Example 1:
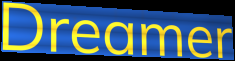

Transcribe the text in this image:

Dreamer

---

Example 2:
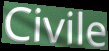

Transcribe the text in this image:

Civile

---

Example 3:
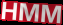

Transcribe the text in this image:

HMM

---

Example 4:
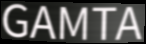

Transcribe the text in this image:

GAMTA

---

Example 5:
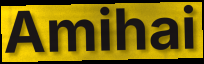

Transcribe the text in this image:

Amihai